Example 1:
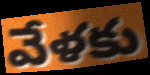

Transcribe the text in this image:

వేళకు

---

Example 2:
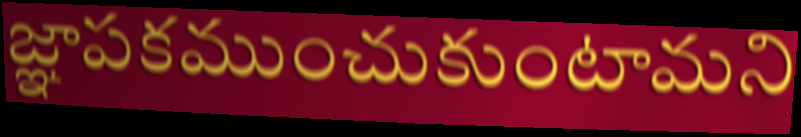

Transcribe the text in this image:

జ్ఞాపకముంచుకుంటామని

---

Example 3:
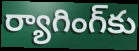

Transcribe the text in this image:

ర్యాగింగ్‌కు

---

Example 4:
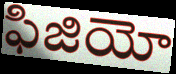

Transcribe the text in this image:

ఫిజియో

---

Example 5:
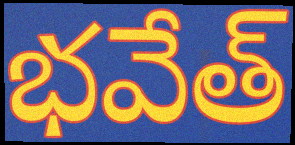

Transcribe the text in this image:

భవేత్